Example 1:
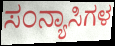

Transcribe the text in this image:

ಸಂನ್ಯಾಸಿಗಳ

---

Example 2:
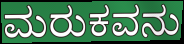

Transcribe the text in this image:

ಮರುಕವನು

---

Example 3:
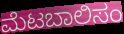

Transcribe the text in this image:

ಮೆಟಬಾಲಿಸಂ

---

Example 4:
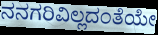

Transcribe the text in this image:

ನನಗರಿವಿಲ್ಲದಂತೆಯೇ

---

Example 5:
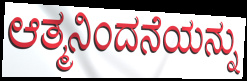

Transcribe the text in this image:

ಆತ್ಮನಿಂದನೆಯನ್ನು